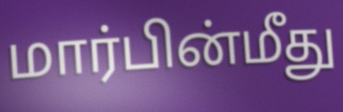
மார்பின்மீது